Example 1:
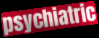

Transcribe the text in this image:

psychiatric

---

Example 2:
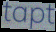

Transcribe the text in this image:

tapt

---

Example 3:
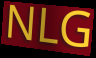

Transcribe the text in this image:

NLG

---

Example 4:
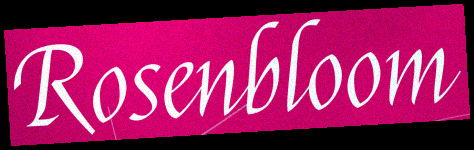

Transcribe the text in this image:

Rosenbloom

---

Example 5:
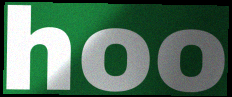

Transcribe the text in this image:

hoo